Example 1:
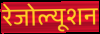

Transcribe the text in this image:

रेजोल्यूशन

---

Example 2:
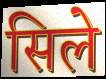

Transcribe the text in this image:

सिले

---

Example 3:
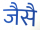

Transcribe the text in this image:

जैसै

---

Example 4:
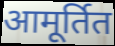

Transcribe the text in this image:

आमूर्तित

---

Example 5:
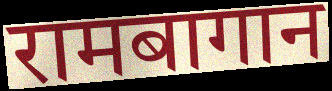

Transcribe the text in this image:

रामबागान